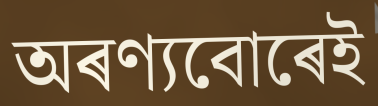
অৰণ্যবোৰেই